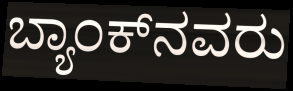
ಬ್ಯಾಂಕ್‌ನವರು